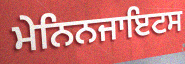
ਮੇਨਿਨਜਾਇਟਸ